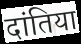
दांतिया